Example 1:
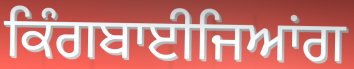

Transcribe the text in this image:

ਕਿੰਗਬਾਈਜਿਆਂਗ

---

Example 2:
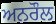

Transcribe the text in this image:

ਅਨਰੌਲ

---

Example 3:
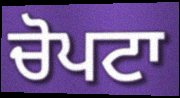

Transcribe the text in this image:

ਚੋਪਟਾ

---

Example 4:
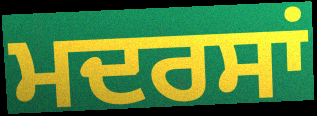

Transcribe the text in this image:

ਮਦਰਸਾਂ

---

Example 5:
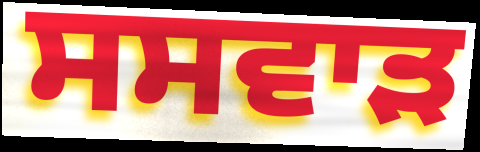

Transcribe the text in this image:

ਸਸਵਾੜ